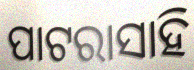
ପାଟରାସାହି